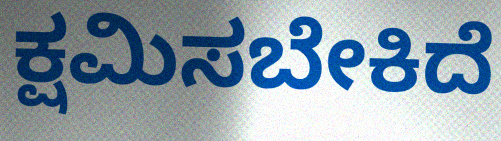
ಕ್ಷಮಿಸಬೇಕಿದೆ